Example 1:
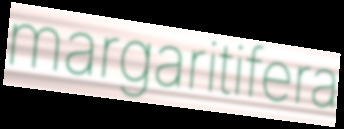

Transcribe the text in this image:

margaritifera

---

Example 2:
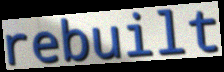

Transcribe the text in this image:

rebuilt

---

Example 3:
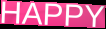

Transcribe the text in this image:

HAPPY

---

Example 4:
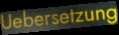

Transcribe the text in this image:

Uebersetzung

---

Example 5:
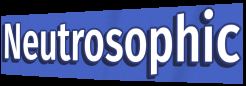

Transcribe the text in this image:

Neutrosophic